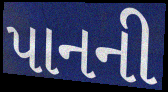
પાનની